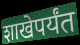
शाखेपर्यंत